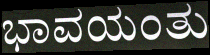
ಭಾವಯಂತು